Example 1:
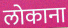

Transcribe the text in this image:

लोकाना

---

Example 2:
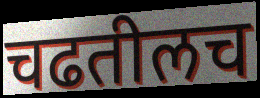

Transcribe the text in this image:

चढतीलच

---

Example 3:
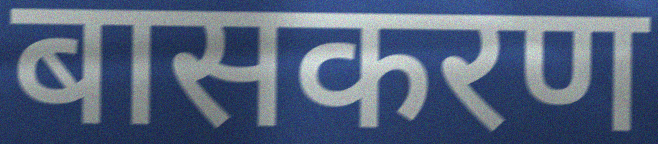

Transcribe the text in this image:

बासकरण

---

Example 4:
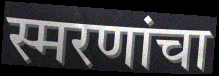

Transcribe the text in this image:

स्मरणांचा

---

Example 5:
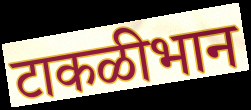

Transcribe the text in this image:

टाकळीभान